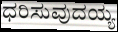
ಧರಿಸುವುದಯ್ಯ